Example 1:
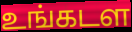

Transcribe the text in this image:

உங்கடள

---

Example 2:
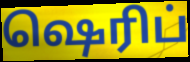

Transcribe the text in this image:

ஷெரிப்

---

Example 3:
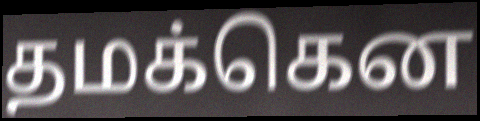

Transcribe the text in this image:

தமக்கென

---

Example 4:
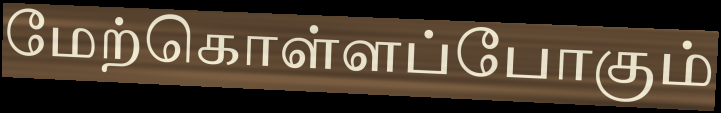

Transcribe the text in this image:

மேற்கொள்ளப்போகும்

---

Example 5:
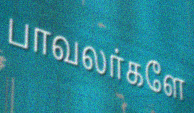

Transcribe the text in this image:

பாவலர்களே